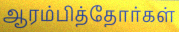
ஆரம்பித்தோர்கள்